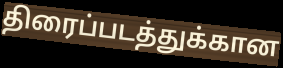
திரைப்படத்துக்கான